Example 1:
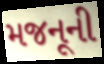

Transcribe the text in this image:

મજનૂની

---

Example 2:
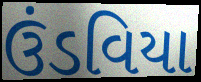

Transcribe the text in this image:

ઉંડવિયા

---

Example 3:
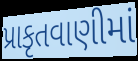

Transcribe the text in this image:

પ્રાકૃતવાણીમાં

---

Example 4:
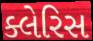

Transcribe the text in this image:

ક્લેરિસ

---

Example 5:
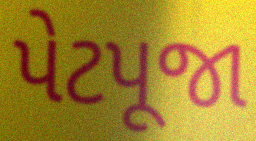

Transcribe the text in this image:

પેટપૂજા